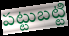
పట్టుబట్టి